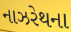
નાઝરેથના